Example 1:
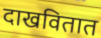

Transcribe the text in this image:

दाखवितात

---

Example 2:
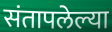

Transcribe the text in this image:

संतापलेल्या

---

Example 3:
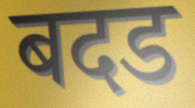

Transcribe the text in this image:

बदड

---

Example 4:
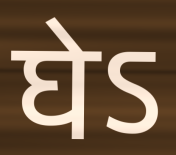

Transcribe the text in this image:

घेऽ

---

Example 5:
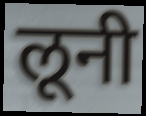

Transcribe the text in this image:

लूनी